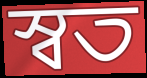
স্বত